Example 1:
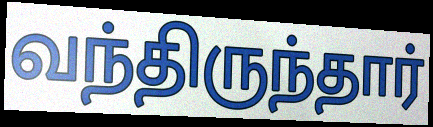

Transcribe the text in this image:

வந்திருந்தார்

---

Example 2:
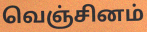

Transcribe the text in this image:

வெஞ்சினம்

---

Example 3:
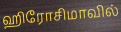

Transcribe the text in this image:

ஹிரோசிமாவில்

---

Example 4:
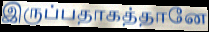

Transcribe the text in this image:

இருப்பதாகத்தானே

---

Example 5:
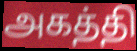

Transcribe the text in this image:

அகத்தி